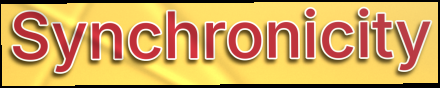
Synchronicity